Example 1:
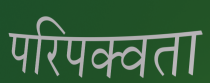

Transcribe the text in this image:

परिपक्वता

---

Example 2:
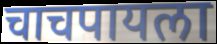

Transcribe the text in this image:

चाचपायला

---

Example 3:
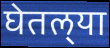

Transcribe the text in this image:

घेतल्या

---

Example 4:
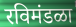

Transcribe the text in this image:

रविमंडळा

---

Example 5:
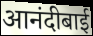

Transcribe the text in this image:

आनंदीबाई